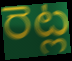
రెట్ల